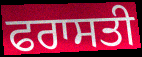
ਫਰਾਸਤੀ